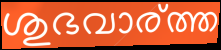
ശുഭവാര്ത്ത